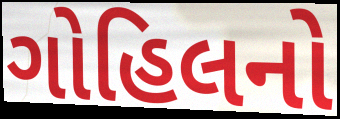
ગોહિલનો